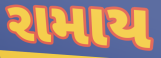
રામાય